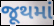
જૂથમાં